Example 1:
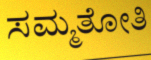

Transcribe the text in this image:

ಸಮ್ಮತೋತಿ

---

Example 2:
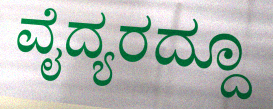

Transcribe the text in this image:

ವೈದ್ಯರದ್ದೂ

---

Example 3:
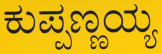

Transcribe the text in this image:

ಕುಪ್ಪಣ್ಣಯ್ಯ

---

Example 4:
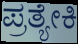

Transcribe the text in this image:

ಪ್ರತ್ಯೇಕಿ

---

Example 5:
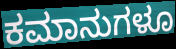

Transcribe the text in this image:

ಕಮಾನುಗಳೂ